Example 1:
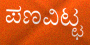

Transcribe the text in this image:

ಪಣವಿಟ್ಟ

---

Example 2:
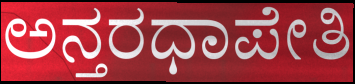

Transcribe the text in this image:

ಅನ್ತರಧಾಪೇತಿ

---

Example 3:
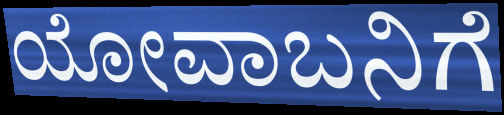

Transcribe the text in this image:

ಯೋವಾಬನಿಗೆ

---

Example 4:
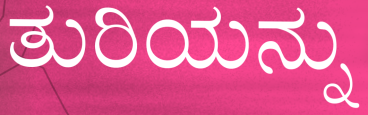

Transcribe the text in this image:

ತುರಿಯನ್ನು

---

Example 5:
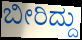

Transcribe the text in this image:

ಬೀರಿದ್ದು